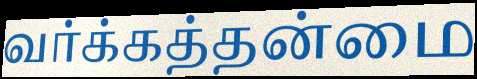
வர்க்கத்தன்மை